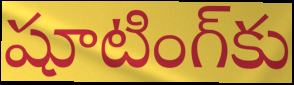
షూటింగ్‌కు